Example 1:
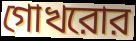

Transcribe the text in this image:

গোখরোর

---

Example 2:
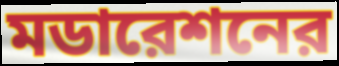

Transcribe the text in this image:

মডারেশনের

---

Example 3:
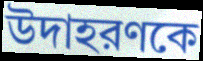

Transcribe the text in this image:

উদাহরণকে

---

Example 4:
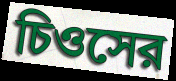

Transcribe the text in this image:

চিওসের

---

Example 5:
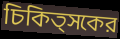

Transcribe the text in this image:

চিকিত্সকের